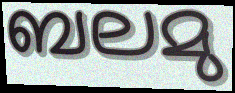
ബലമു